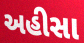
અહીસા